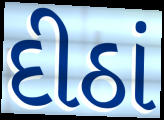
દીઠાં